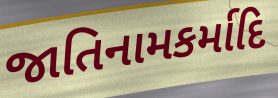
જાતિનામકર્માદિ